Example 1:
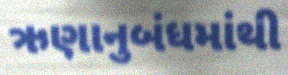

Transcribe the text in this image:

ઋણાનુબંધમાંથી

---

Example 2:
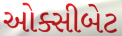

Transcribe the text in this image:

ઓક્સીબેટ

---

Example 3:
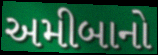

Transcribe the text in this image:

અમીબાનો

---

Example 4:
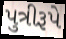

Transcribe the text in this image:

પુત્રીરૂપે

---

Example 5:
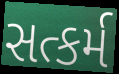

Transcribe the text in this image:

સત્કર્મ